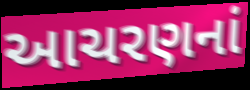
આચરણનાં